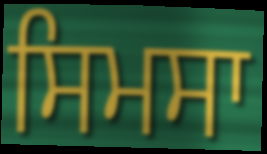
ਸਿਮਸਾ